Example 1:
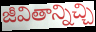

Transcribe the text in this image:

జీవితాన్నిచ్చి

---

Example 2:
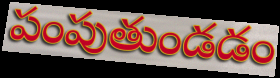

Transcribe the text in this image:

పంపుతుండడం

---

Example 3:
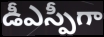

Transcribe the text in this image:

డీఎస్పీగా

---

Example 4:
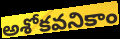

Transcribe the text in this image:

అశోకవనికాం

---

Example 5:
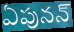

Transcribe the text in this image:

ఏపునన్